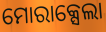
ମୋରାକ୍ସେଲା